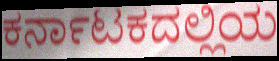
ಕರ್ನಾಟಕದಲ್ಲಿಯ